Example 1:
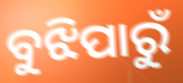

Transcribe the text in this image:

ବୁଝିପାରୁଁ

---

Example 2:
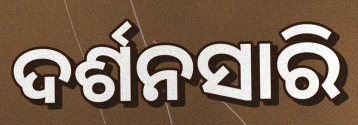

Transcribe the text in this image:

ଦର୍ଶନସାରି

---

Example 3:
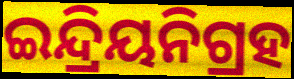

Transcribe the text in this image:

ଇନ୍ଦ୍ରିୟନିଗ୍ରହ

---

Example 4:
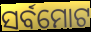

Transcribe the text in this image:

ସର୍ବମୋଟ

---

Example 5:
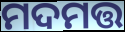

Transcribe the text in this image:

ମଦମତ୍ତ